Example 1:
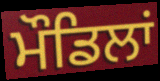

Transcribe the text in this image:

ਮੌਡਿਲਾਂ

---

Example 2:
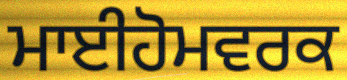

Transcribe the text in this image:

ਮਾਈਹੋਮਵਰਕ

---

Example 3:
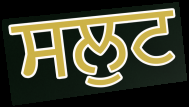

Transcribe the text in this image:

ਸਲੁਟ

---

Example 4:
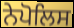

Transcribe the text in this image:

ਨੇਪੋਲਿਸ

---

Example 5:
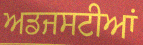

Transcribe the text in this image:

ਅਡਜਸਟੀਆਂ